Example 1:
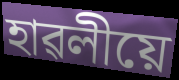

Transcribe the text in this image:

হাৱলীয়ে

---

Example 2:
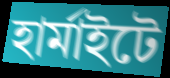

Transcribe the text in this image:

হাৰ্মাইটে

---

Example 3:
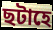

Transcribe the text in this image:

ছটাহে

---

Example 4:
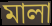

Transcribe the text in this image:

মালা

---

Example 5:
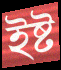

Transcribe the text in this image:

ইষ্ট